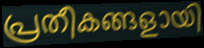
പ്രതീകങ്ങളായി